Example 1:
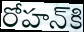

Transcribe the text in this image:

రోహన్‌కి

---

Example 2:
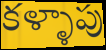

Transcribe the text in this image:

కళ్ళాపు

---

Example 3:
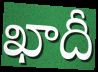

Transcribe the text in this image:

ఖాదీ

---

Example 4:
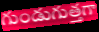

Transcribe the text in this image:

గుండుగుత్తగా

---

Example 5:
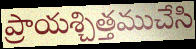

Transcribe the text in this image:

ప్రాయశ్చిత్తముచేసి